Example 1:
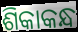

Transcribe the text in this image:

ଶିକାକନ୍ଧ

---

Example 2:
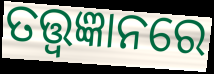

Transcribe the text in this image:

ତତ୍ତ୍ୱଜ୍ଞାନରେ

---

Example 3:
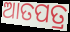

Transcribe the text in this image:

ଆତପତ୍ର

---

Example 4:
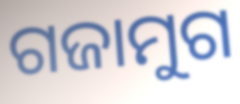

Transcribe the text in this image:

ଗଜାମୁଗ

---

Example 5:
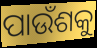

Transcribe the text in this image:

ପାଉଁଶକୁ